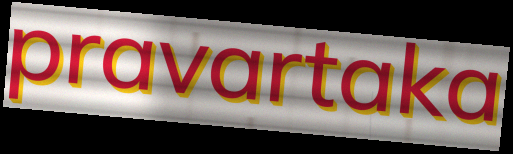
pravartaka